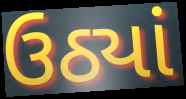
ઉઠ્યાં